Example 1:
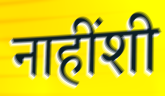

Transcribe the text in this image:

नाहींशी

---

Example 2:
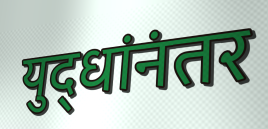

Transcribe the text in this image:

युद्धांनंतर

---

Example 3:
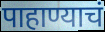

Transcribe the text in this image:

पाहाण्याचं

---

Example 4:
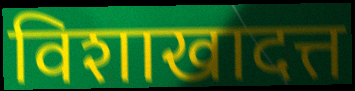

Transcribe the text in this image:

विशाखादत्त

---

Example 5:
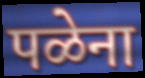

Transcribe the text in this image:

पळेना